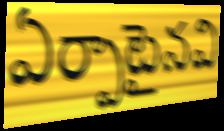
ఏర్పాటైనవి